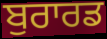
ਬੁਰਾਰਡ